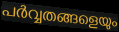
പർവ്വതങ്ങളെയും